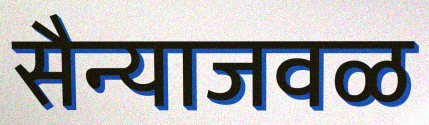
सैन्याजवळ